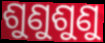
ଶୁଣୁଶୁଣୁ